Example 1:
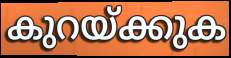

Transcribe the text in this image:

കുറയ്ക്കുക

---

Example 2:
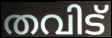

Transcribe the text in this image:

തവിട്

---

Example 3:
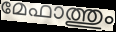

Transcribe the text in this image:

മേഫാത്തും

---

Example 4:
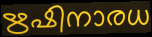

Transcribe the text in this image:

ഋഷിനാരധ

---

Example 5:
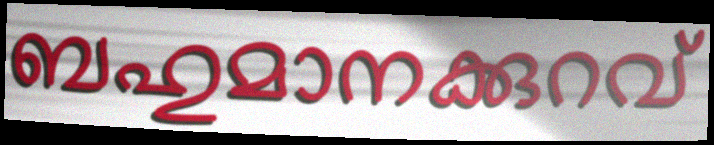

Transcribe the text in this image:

ബഹുമാനക്കുറവ്